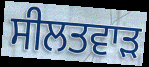
ਸੀਲਤਵਾੜ